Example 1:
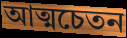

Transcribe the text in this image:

আত্মচেতন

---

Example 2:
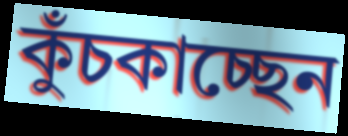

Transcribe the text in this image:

কুঁচকাচ্ছেন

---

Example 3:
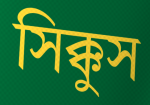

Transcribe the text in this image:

সিক্কুস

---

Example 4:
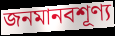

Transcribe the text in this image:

জনমানবশূণ্য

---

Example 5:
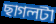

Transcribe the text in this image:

ছাগলটা